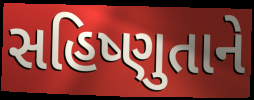
સહિષ્ણુતાને